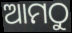
ଆମଠୁ